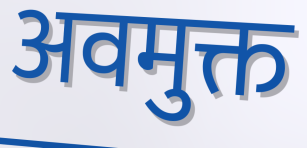
अवमुक्त